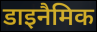
डाइनैमिक